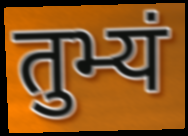
तुभ्यं